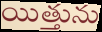
యిత్తును